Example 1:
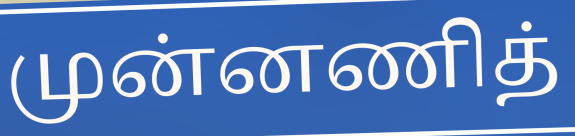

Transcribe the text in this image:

முன்னணித்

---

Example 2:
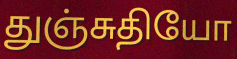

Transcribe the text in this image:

துஞ்சுதியோ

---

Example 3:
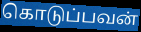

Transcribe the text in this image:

கொடுப்பவன்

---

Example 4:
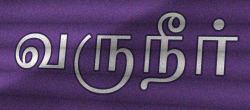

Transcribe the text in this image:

வருநீர்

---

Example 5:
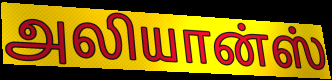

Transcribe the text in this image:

அலியான்ஸ்